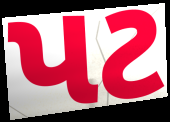
પટ